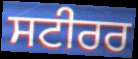
ਸਟੀਰਰ